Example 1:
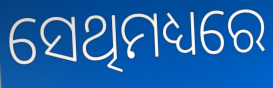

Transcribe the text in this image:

ସେଥିମଧ୍ୟରେ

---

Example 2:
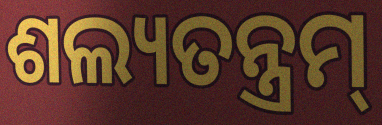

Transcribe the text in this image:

ଶଲ୍ୟତନ୍ତ୍ରମ୍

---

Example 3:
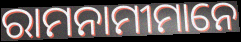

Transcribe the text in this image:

ରାମନାମୀମାନେ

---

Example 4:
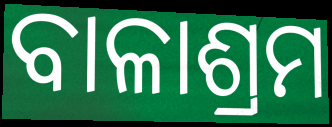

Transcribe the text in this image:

ବାଳାଶ୍ରମ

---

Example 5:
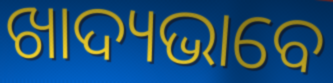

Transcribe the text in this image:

ଖାଦ୍ୟଭାବେ